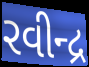
રવીન્દ્ર